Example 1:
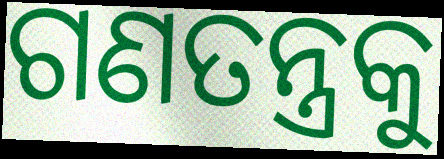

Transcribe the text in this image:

ଗଣତନ୍ତ୍ରକୁ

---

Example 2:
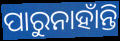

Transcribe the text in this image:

ପାରୁନାହାଁନ୍ତି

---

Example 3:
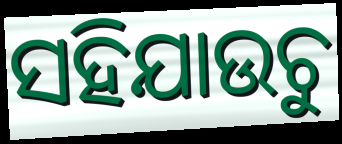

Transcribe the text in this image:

ସହିଯାଉଚୁ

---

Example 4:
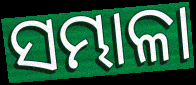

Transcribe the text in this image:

ସମ୍ଭାଳା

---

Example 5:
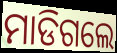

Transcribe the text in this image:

ମାଡିଗଲେ